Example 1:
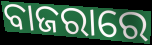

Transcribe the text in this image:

ବାଜରାରେ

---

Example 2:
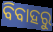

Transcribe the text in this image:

ବିବାହରୁ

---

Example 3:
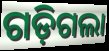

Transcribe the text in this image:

ଗଡ଼ିଗଲା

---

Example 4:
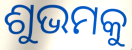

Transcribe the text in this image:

ଶୁଭମକୁ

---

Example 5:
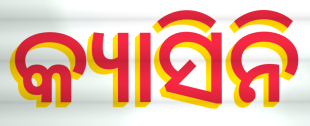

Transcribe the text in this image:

କ୍ୟାସିନି